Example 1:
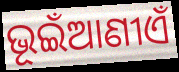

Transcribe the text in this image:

ଭୂଇଁଆଣୀଏଁ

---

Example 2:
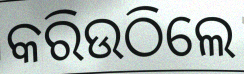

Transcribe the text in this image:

କରିଉଠିଲେ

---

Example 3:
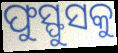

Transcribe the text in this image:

ଫୁସ୍ଫୁସକୁ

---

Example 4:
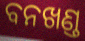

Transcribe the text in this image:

ବନଖଣ୍ଡ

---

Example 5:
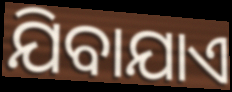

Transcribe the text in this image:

ଯିବାଯାଏ